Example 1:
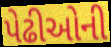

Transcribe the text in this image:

પેઢીઓની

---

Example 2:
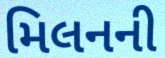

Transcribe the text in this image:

મિલનની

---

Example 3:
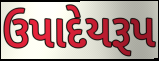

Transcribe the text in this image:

ઉપાદેયરૂપ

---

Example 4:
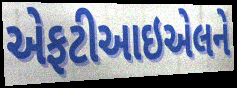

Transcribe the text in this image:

એફટીઆઇએલને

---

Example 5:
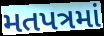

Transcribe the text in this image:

મતપત્રમાં